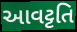
આવટ્ટતિ